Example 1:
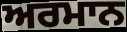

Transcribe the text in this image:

ਅਰਮਾਨ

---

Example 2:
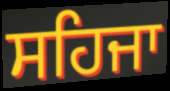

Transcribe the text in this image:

ਸਹਿਜਾ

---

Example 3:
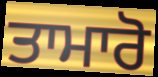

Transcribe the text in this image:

ਤਾਮਾਰੋ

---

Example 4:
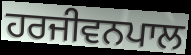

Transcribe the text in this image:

ਹਰਜੀਵਨਪਾਲ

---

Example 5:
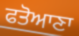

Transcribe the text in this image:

ਫਤੋਆਣਾ